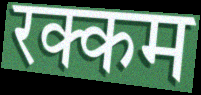
रक्कम